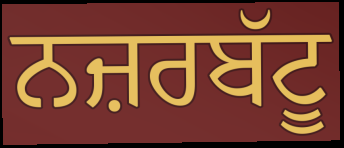
ਨਜ਼ਰਬੱਟੂ